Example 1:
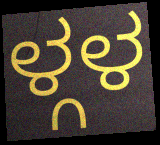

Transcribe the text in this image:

ಳ್ಗಳ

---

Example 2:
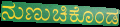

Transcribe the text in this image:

ನುಣುಚಿಕೊಂಡ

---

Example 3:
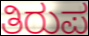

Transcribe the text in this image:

ತಿರುಪ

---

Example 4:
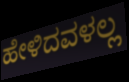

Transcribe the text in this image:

ಹೇಳಿದವಳಲ್ಲ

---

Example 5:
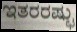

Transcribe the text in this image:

ಇತರರಷ್ಟು